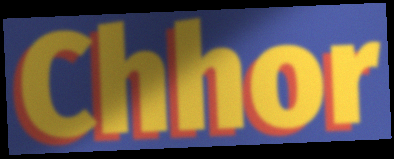
Chhor